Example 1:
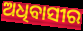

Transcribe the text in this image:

ଅଧିବାସୀର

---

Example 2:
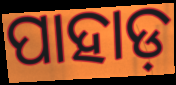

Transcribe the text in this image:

ପାହାଡ଼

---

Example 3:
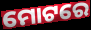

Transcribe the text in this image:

ମୋଟରେ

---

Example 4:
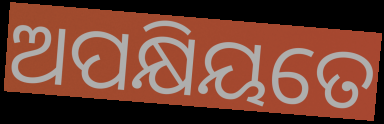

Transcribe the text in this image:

ଅପକ୍ଷିୟତେ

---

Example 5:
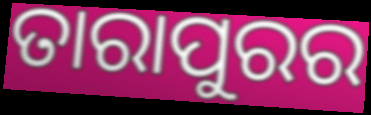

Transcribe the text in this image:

ତାରାପୁରର